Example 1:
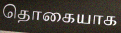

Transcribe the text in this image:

தொகையாக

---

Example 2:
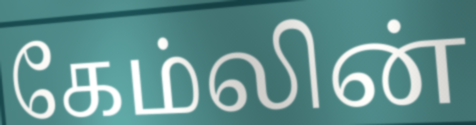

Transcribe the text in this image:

கேம்லின்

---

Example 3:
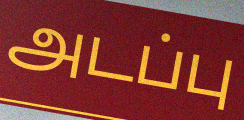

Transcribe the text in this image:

அடப்பு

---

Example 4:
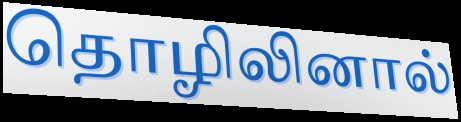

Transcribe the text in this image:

தொழிலினால்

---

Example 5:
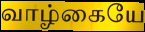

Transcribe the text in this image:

வாழ்கையே